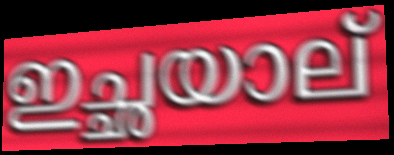
ഇച്ഛയാല്